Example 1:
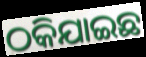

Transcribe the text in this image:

ଠକିଯାଇଛ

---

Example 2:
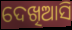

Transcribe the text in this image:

ଦେଖିଆସି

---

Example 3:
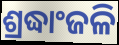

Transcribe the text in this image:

ଶ୍ରଦ୍ଧାଂଜଳି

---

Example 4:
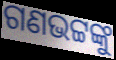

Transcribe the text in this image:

ଗଣଭଟ୍ଟଙ୍କୁ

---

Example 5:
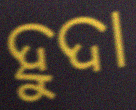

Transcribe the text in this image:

ହୁଦା